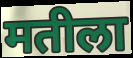
मतीला